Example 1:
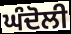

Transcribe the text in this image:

ਘੰਦੋਲੀ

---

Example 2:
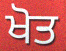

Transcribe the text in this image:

ਖੋਤ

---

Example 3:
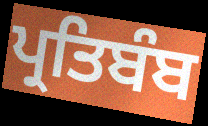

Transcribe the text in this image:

ਪ੍ਰਤਿਬੰਬ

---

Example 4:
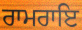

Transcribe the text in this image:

ਰਾਮਰਾਇ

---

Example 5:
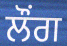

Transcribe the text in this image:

ਲੌਂਗ